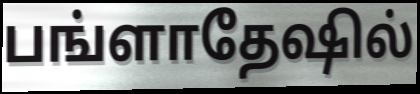
பங்ளாதேஷில்